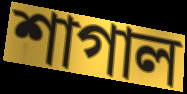
শাগাল